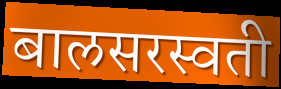
बालसरस्वती